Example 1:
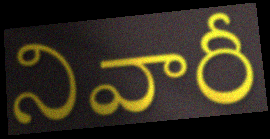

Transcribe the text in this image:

నివారీ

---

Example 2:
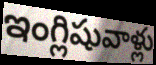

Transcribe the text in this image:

ఇంగ్లిషువాళ్లు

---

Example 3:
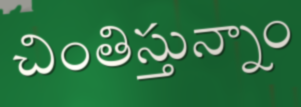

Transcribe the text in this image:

చింతిస్తున్నాం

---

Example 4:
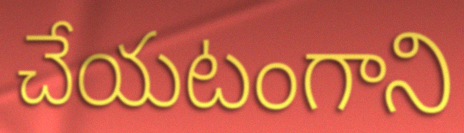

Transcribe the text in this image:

చేయటంగాని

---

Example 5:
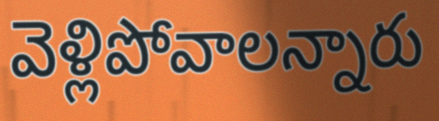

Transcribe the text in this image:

వెళ్లిపోవాలన్నారు